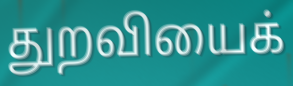
துறவியைக்